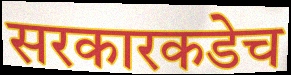
सरकारकडेच